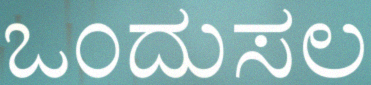
ಒಂದುಸಲ